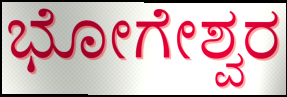
ಭೋಗೇಶ್ವರ